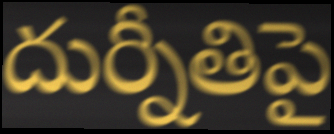
దుర్నీతిపై